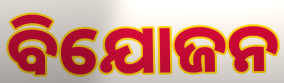
ବିଯୋଜନ